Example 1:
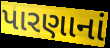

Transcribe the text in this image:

પારણાનાં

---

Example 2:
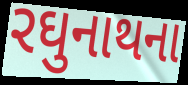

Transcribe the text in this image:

રઘુનાથના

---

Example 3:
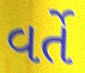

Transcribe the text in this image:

વર્તે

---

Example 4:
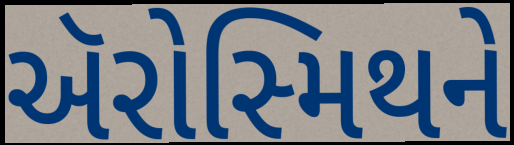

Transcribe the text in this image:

ઍરોસ્મિથને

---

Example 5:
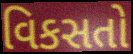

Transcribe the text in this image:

વિકસતો